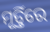
ମୂର୍ତ୍ତିରେ